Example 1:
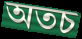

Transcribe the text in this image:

অতচ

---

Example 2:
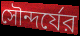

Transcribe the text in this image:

সৌন্দর্যের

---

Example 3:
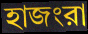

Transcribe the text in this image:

হাজংরা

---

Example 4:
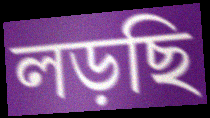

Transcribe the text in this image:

লড়ছি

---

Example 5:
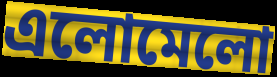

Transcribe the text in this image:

এলোমেলো